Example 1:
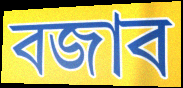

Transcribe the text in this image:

বজাব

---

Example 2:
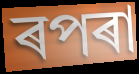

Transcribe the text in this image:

ৰপৰা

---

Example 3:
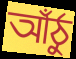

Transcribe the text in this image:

আঁঠু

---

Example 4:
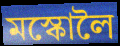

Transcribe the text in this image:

মস্কোলৈ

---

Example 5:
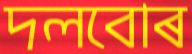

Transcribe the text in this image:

দলবোৰ